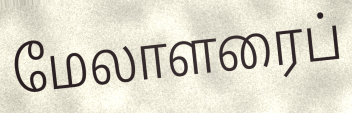
மேலாளரைப்